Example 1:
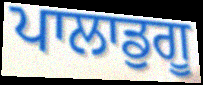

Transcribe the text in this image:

ਪਾਲਾਡੁਗੂ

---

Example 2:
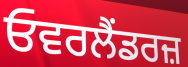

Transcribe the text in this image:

ਓਵਰਲੈਂਡਰਜ਼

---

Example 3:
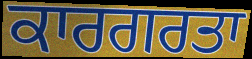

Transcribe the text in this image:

ਕਾਰਗਰਤਾ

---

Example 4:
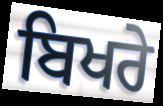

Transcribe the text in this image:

ਬਿਖਰੇ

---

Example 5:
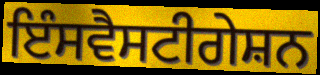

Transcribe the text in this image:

ਇੰਸਵੈਸਟੀਗੇਸ਼ਨ